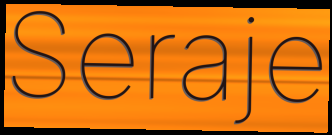
Seraje